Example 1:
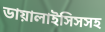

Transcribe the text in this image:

ডায়ালাইসিসসহ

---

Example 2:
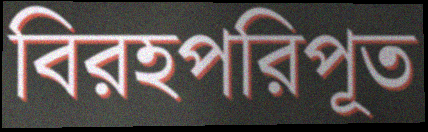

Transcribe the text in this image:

বিরহপরিপূত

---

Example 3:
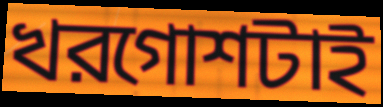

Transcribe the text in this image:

খরগোশটাই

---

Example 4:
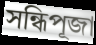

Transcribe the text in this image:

সন্ধিপূজা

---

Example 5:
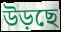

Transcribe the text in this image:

উড়ছে